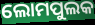
ଲୋମପୁଲକ